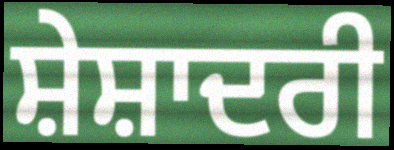
ਸ਼ੇਸ਼ਾਦਰੀ